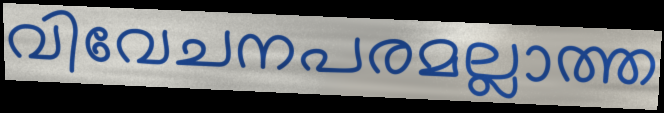
വിവേചനപരമല്ലാത്ത